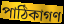
পাঠিকাগণ